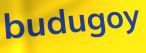
budugoy